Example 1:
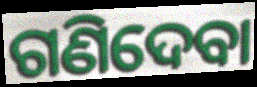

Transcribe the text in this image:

ଗଣିଦେବା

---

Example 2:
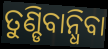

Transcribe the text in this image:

ତୁଣ୍ଡିବାନ୍ଧିବା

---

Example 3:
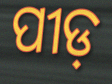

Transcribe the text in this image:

ପୀଡ଼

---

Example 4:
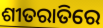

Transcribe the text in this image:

ଶୀତରାତିରେ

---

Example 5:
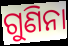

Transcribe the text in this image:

ଗୁଣିନା